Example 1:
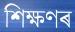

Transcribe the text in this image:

শিক্ষণৰ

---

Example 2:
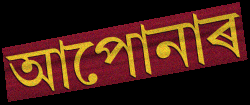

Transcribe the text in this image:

আপোনাৰ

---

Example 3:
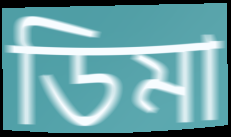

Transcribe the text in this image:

ডিমা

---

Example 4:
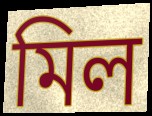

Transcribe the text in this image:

মিল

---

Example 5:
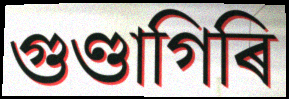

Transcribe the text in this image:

গুণ্ডাগিৰি